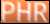
PHR